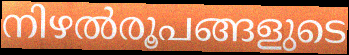
നിഴൽരൂപങ്ങളുടെ